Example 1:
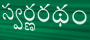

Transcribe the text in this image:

స్వర్ణరథం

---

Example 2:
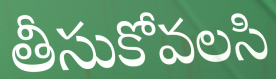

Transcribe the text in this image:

తీసుకోవలసి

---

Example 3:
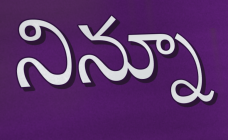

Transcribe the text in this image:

నిన్నూ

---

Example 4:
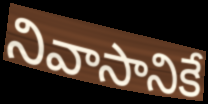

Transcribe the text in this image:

నివాసానికే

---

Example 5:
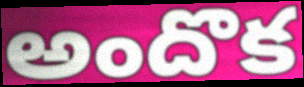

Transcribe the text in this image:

అందొక